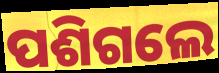
ପଶିଗଲେ